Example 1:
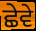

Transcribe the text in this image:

ਛੇਵੇ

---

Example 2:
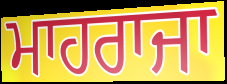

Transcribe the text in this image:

ਮਾਹਰਾਜਾ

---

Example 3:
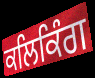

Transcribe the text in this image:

ਕਲਿਕਿੰਗ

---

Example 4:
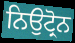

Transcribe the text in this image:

ਨਿਉਟ੍ਰੋਨ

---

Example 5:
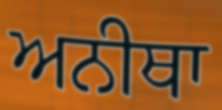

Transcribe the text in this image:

ਅਨੀਥਾ